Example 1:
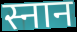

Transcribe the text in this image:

स्‍नान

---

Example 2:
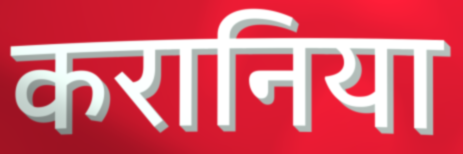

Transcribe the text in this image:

करानिया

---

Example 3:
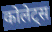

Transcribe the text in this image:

कोलेट्स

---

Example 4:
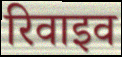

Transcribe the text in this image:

रिवाइव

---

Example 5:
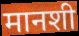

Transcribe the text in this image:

मानशी